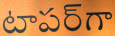
టాపర్‌గా